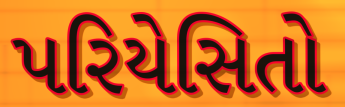
પરિયેસિતો